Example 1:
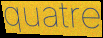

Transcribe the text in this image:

quatre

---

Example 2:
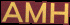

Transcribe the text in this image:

AMH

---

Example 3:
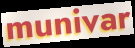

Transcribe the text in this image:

munivar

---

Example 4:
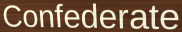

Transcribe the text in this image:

Confederate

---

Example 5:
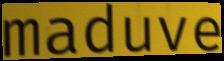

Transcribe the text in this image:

maduve